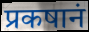
प्रकषानं